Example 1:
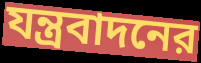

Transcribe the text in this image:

যন্ত্রবাদনের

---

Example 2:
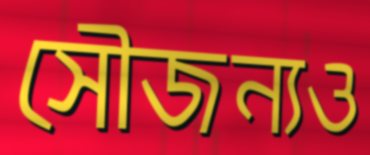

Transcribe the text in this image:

সৌজন্যও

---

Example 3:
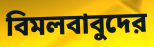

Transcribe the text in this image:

বিমলবাবুদের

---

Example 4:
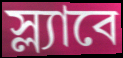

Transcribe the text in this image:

স্ল্যাবে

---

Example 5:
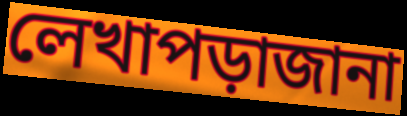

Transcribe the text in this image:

লেখাপড়াজানা